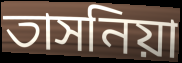
তাসনিয়া